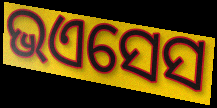
ଭଏସେସ